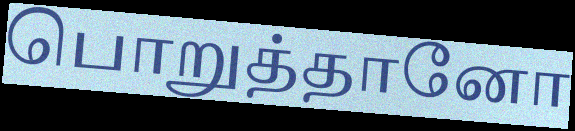
பொறுத்தானோ